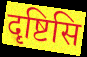
दृष्टिसि